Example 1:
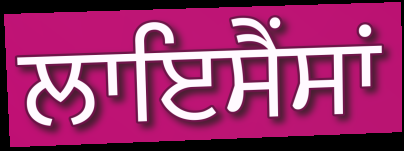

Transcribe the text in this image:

ਲਾਇਸੈਂਸਾਂ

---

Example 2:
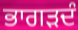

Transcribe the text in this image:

ਭਾਗੜਦੰ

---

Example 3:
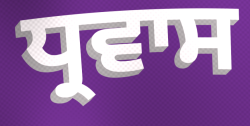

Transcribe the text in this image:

ਧ੍ਰਵਾਸ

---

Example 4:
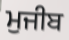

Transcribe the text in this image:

ਮੁਜੀਬ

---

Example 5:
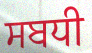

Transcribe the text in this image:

ਸਬਧੀ